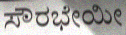
ಸೌರಭೇಯೀ